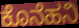
ಕೊನೆಹನಿ